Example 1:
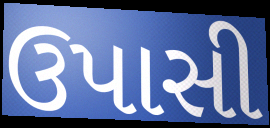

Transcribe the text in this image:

ઉપાસી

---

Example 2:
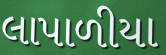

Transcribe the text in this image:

લાપાળીયા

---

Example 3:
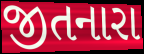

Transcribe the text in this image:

જીતનારા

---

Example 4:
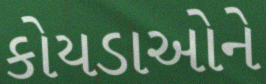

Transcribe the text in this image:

કોયડાઓને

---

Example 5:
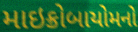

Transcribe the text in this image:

માઇક્રોબાયોમનો